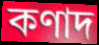
কণাদ